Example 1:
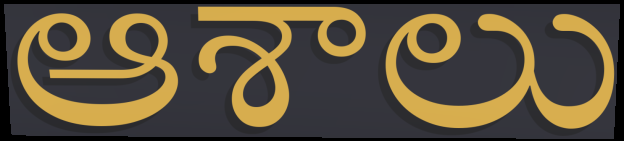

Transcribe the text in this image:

ఆశాలు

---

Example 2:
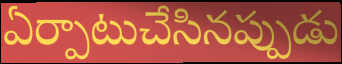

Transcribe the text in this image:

ఏర్పాటుచేసినప్పుడు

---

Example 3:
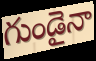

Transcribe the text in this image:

గుండైనా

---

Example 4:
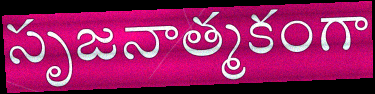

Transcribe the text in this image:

సృజనాత్మకంగా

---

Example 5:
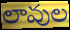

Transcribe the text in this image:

లావుల